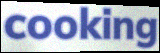
cooking